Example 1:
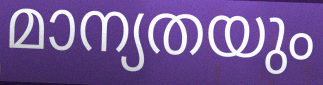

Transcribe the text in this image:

മാന്യതയും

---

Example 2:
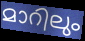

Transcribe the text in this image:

മാറിലും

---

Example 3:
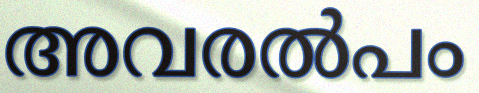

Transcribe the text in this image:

അവരൽപം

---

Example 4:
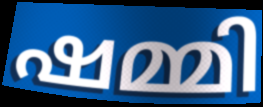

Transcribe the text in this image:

ഷമ്മി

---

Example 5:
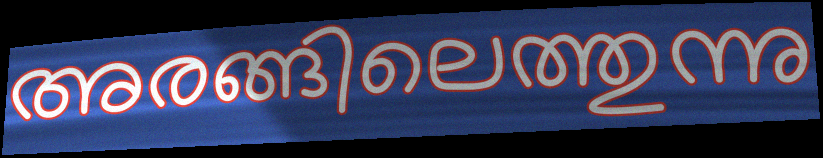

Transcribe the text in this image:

അരങ്ങിലെത്തുന്നു